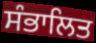
ਸੰਭਾਲਿਤ